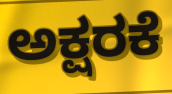
ಅಕ್ಷರಕೆ